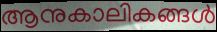
ആനുകാലികങ്ങൾ